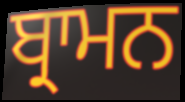
ਬ੍ਰਾਮਨ